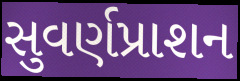
સુવર્ણપ્રાશન